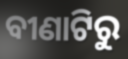
ବୀଣାଟିରୁ